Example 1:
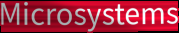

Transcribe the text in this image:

Microsystems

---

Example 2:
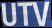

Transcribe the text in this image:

UTV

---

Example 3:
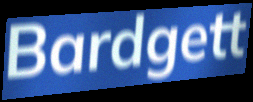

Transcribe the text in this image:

Bardgett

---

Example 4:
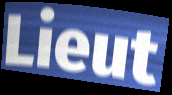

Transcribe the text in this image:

Lieut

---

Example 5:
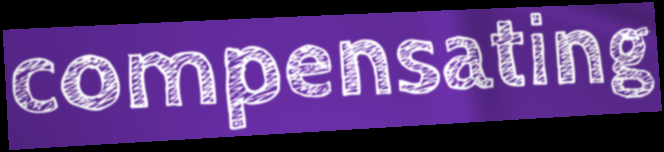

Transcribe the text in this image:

compensating